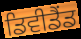
ਡਿਵੀਡੈਂਡ